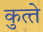
कुत्‍ते